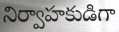
నిర్వాహకుడిగా